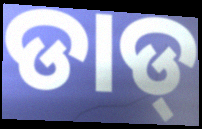
ଡାଡ୍